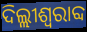
ଦିଲ୍ଲୀଶ୍ୱରାବ୍ଦ